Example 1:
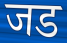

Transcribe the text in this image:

जड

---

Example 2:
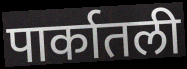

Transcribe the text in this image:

पार्कातली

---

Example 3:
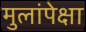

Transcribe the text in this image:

मुलांपेक्षा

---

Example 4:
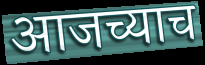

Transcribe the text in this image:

आजच्याच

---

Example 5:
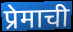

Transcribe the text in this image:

प्रेमाची